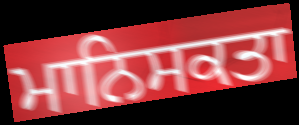
ਮਾਨਿਸਕਤਾ